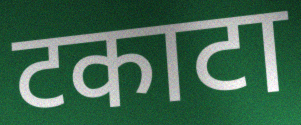
टकाटा